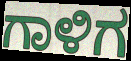
ಗಾಳಿಗ